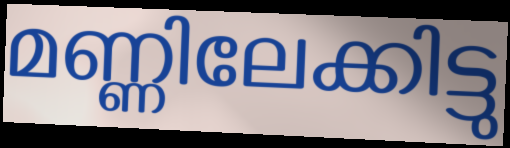
മണ്ണിലേക്കിട്ടു